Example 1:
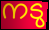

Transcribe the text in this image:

നടു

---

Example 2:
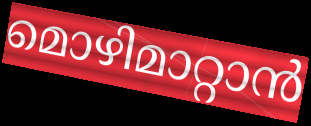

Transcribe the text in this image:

മൊഴിമാറ്റാൻ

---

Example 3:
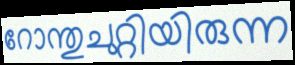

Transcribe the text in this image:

റോന്തുചുറ്റിയിരുന്ന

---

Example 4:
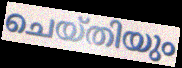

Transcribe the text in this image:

ചെയ്തിയും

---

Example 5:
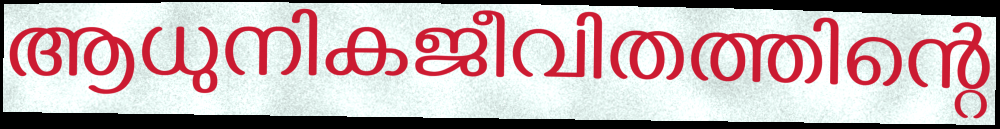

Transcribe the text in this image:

ആധുനികജീവിതത്തിന്റെ